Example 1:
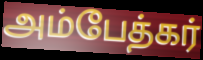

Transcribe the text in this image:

அம்பேத்கர்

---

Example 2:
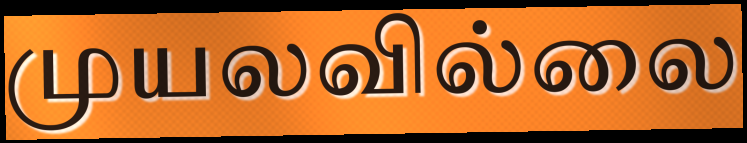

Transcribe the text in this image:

முயலவில்லை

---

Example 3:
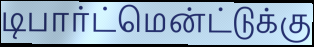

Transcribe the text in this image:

டிபார்ட்மென்ட்டுக்கு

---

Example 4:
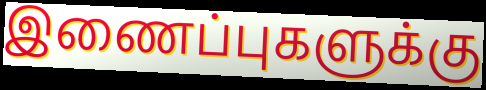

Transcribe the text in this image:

இணைப்புகளுக்கு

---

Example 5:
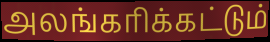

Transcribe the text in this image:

அலங்கரிக்கட்டும்